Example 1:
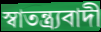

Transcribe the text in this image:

স্বাতন্ত্র্যবাদী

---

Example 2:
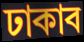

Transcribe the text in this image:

ঢাকাব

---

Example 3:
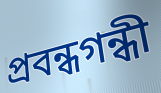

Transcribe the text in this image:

প্রবন্ধগন্ধী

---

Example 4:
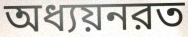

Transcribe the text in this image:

অধ্যয়নরত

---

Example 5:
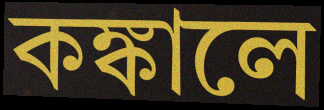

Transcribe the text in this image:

কঙ্কালে